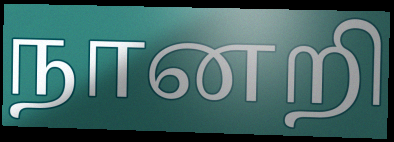
நானறி